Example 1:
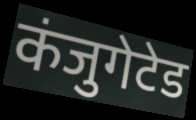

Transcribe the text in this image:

कंजुगेटेड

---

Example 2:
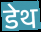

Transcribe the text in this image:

डेथ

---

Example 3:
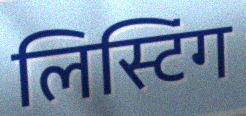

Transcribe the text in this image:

लिस्टिंग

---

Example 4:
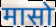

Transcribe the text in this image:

मासो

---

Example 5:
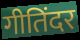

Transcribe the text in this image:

गीतिंदर